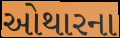
ઓથારના